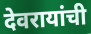
देवरायांची